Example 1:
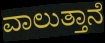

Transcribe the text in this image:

ವಾಲುತ್ತಾನೆ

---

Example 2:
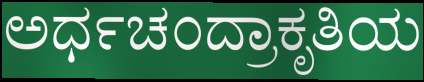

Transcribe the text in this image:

ಅರ್ಧಚಂದ್ರಾಕೃತಿಯ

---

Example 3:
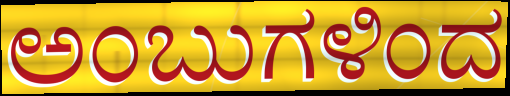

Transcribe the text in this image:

ಅಂಬುಗಳಿಂದ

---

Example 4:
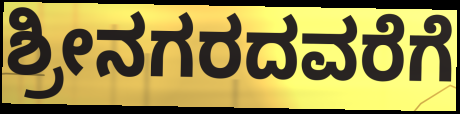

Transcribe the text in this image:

ಶ್ರೀನಗರದವರೆಗೆ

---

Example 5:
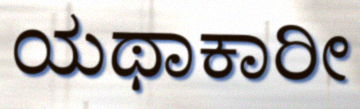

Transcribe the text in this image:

ಯಥಾಕಾರೀ